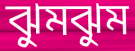
ঝুমঝুম